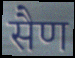
सैण